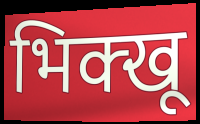
भिक्‍खू